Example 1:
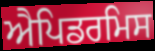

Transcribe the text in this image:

ਐਪਿਡਰਮਿਸ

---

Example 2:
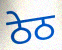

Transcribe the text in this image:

ਠੇਠ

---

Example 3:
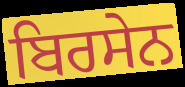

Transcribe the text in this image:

ਬਿਰਸੇਨ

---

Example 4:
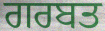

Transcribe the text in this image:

ਗਰਬਤ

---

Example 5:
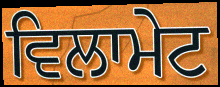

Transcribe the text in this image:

ਵਿਲਾਮੇਟ